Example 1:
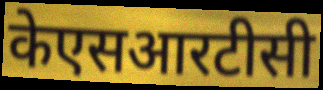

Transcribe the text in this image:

केएसआरटीसी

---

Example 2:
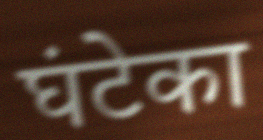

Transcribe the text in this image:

घंटेका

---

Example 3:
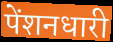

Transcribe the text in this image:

पेंशनधारी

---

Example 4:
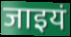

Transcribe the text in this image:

जाइयं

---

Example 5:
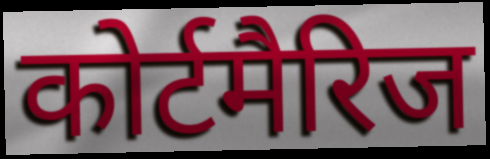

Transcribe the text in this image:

कोर्टमैरिज